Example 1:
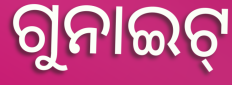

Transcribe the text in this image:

ଗୁନାଇଟ୍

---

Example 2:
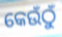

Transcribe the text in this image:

କେଉଁଠୁଁ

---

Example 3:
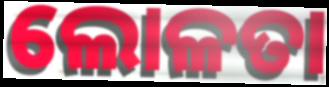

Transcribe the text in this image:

ଲୋଳତା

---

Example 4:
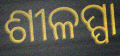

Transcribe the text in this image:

ଶୀଳପ୍ପା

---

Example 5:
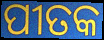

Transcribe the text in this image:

ପୀତକ